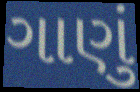
ગાણું